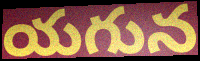
యగున